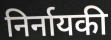
निर्नायकी